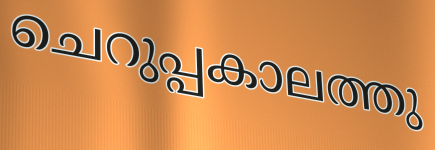
ചെറുപ്പകാലത്തു